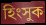
হিংসুক